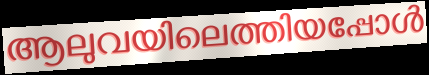
ആലുവയിലെത്തിയപ്പോൾ